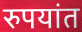
रुपयांत